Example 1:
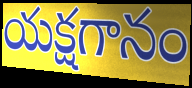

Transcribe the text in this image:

యక్షగానం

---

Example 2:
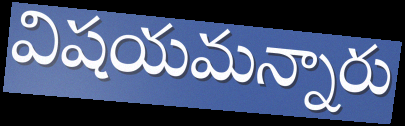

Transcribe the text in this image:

విషయమన్నారు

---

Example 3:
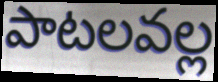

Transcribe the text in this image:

పాటలవల్ల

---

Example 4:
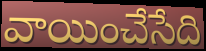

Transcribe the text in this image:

వాయించేసేది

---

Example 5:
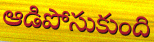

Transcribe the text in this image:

ఆడిపోసుకుంది